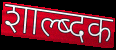
शाल्ब्दक